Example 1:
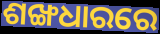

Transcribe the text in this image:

ଶଙ୍ଖଧାରରେ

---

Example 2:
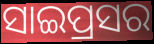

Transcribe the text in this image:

ସାଇପ୍ରସର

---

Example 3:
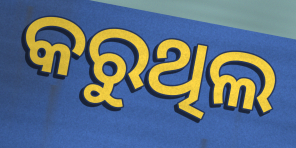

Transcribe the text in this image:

କରୁଥିଲ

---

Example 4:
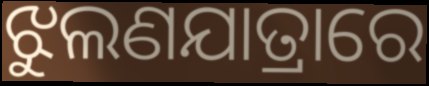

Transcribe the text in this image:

ଝୁଲଣଯାତ୍ରାରେ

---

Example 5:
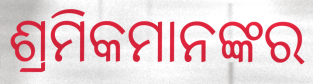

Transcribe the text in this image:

ଶ୍ରମିକମାନଙ୍କର